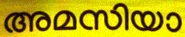
അമസിയാ